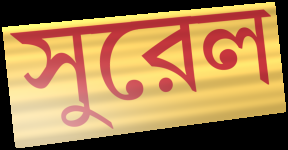
সুরেল